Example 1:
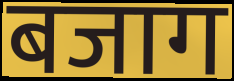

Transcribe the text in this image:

बजाग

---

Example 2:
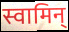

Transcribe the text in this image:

स्वामिन्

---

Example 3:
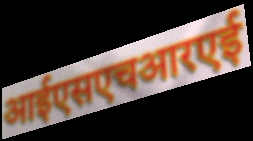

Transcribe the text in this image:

आईएसएचआरएई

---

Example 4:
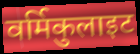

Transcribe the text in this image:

वर्मिकुलाइट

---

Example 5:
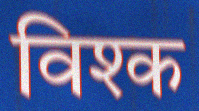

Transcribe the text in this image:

विश्क